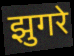
झुगरे